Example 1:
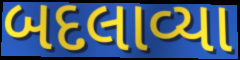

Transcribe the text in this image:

બદલાવ્યા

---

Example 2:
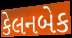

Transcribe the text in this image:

કેલનબેક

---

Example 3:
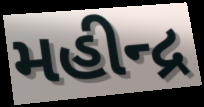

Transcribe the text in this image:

મહીન્દ્ર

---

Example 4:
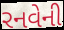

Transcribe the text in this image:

રનવેની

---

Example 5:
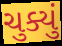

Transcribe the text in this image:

ચુક્યું